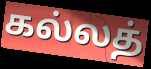
கல்லத்